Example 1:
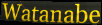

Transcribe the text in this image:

Watanabe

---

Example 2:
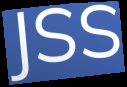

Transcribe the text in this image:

JSS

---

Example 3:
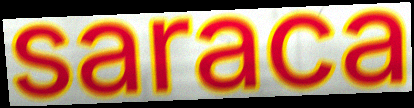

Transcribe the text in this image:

saraca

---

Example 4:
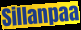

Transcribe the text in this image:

Sillanpaa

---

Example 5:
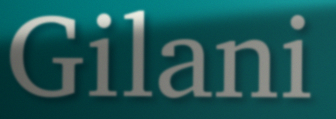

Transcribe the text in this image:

Gilani